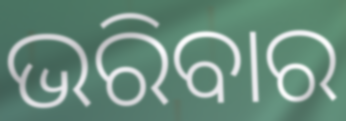
ଭରିବାର